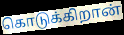
கொடுக்கிறான்